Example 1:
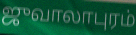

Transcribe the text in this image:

ஜுவாலாபுரம்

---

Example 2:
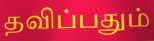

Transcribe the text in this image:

தவிப்பதும்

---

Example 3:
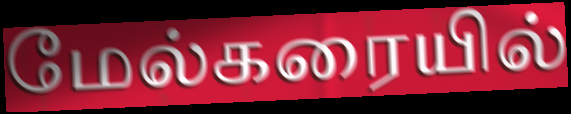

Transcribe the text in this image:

மேல்கரையில்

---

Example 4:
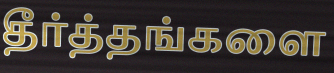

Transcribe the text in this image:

தீர்த்தங்களை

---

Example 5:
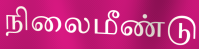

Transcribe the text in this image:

நிலைமீண்டு